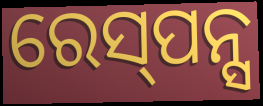
ରେସ୍‌ପନ୍ସ